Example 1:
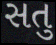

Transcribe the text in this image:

સતુ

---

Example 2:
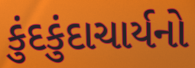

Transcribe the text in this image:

કુંદકુંદાચાર્યનો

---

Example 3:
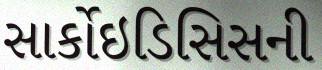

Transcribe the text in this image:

સાર્કોઇડિસિસની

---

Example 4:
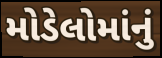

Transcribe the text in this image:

મોડેલોમાંનું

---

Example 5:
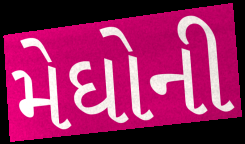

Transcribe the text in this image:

મેઘોની